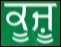
ਕੂਜ਼ੂ